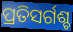
ପ୍ରତିସର୍ଗଶ୍ଚ